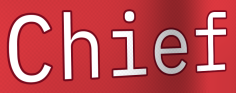
Chief